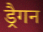
ड्रैगन